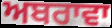
ਅਬਰਾਵਾ